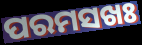
ପରମସଖଃ